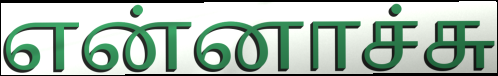
என்னாச்சு